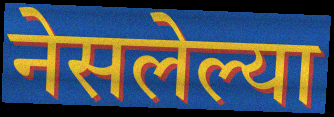
नेसलेल्या